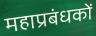
महाप्रबंधकों